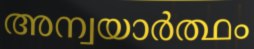
അന്വയാർത്ഥം